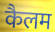
कैलम